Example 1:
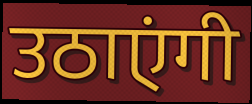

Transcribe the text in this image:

उठाएंगी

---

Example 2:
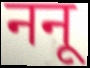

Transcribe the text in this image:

ननू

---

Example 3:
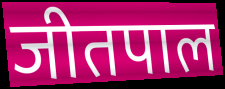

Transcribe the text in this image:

जीतपाल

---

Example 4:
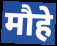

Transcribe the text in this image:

मौहे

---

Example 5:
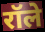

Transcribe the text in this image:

रॉले